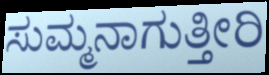
ಸುಮ್ಮನಾಗುತ್ತೀರಿ